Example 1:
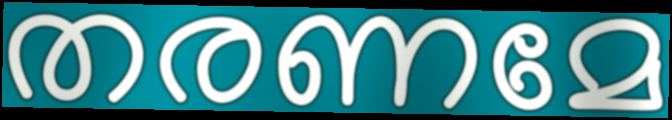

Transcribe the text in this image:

തരണമേ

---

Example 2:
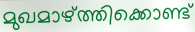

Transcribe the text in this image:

മുഖമാഴ്ത്തിക്കൊണ്ട്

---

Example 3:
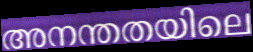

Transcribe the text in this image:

അനന്തതയിലെ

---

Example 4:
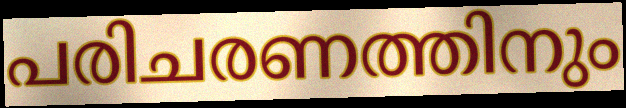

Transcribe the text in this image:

പരിചരണത്തിനും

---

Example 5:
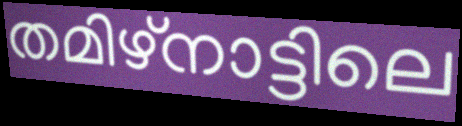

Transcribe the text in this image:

തമിഴ്നാട്ടിലെ